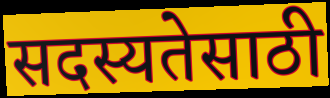
सदस्यतेसाठी